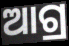
ଆଗ୍ର